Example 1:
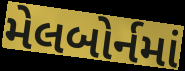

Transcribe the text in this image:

મેલબોર્નમાં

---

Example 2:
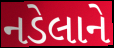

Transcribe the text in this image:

નડેલાને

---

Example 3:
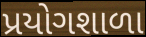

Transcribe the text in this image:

પ્રયોગશાળા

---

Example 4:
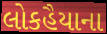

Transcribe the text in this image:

લોકહૈયાના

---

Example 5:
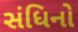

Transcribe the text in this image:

સંધિનો